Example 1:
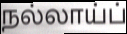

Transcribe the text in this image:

நல்லாய்ப்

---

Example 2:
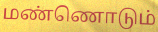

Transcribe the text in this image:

மண்ணொடும்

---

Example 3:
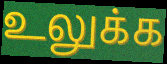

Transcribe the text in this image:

உலுக்க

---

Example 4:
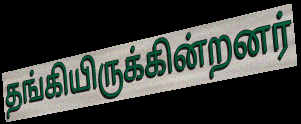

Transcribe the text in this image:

தங்கியிருக்கின்றனர்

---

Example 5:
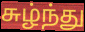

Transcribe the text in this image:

சுழ்ந்து